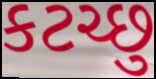
કટચ્છુ